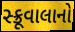
સ્ક્રૂવાલાનો